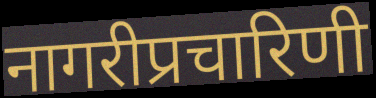
नागरीप्रचारिणी